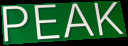
PEAK